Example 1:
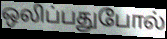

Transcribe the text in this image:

ஒலிப்பதுபோல்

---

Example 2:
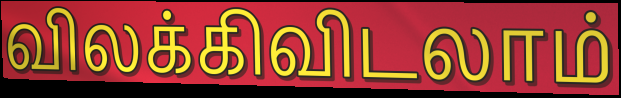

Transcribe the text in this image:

விலக்கிவிடலாம்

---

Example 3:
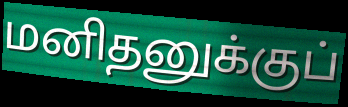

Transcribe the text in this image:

மனிதனுக்குப்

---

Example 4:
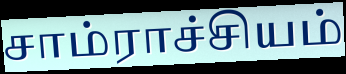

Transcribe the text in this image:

சாம்ராச்சியம்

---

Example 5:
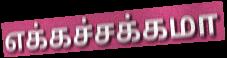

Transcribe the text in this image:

எக்கச்சக்கமா